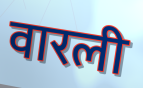
वारली